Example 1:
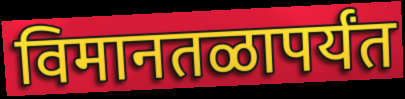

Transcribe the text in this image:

विमानतळापर्यंत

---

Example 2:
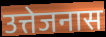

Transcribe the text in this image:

उत्तेजनास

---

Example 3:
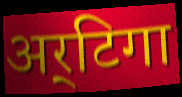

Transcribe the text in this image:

अर्टिगा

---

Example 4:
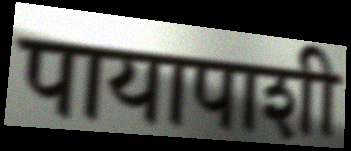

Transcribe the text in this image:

पायापाशी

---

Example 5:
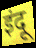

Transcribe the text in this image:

इंदू